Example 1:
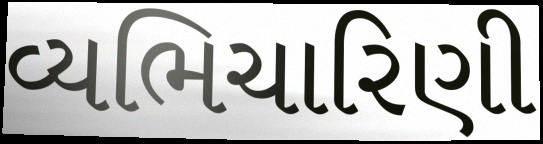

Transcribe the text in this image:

વ્યભિચારિણી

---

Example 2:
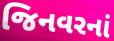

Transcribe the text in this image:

જિનવરનાં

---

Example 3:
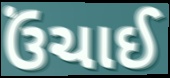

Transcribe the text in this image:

ઉંચાઈ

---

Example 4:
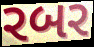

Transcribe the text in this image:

રબર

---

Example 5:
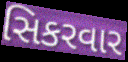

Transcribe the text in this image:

સિકરવાર